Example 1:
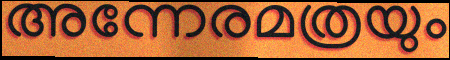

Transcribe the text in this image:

അന്നേരമത്രയും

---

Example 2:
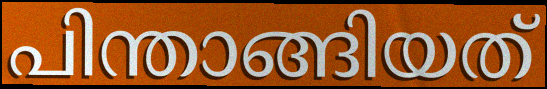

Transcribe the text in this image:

പിന്താങ്ങിയത്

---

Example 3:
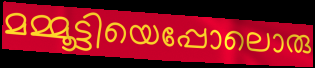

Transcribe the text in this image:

മമ്മൂട്ടിയെപ്പോലൊരു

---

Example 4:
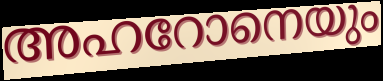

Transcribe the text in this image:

അഹറോനെയും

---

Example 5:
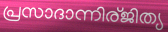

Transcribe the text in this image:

പ്രസാദാന്നിര്ജിത്യ